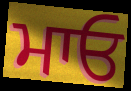
ਮਾਓ